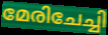
മേരിചേച്ചി